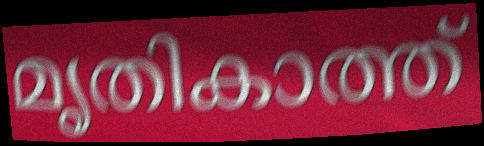
മൃതികാത്ത്